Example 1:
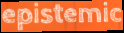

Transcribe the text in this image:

epistemic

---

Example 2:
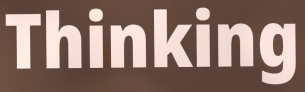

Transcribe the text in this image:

Thinking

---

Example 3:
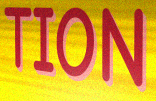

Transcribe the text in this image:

TION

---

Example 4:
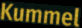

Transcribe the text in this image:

Kummel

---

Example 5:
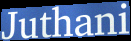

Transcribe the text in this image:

Juthani